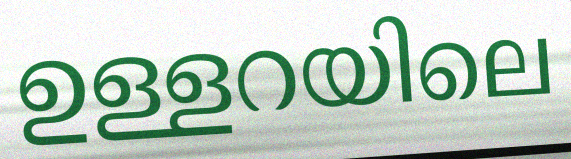
ഉള്ളറയിലെ